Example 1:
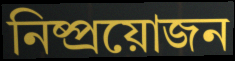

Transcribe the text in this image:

নিষ্প্ৰয়োজন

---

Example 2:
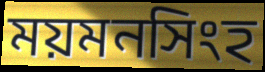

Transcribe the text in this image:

ময়মনসিংহ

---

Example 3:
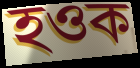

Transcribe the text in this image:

হওক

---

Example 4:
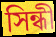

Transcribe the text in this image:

সিন্ধী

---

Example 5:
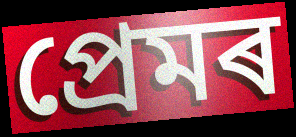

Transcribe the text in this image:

প্ৰেমৰ